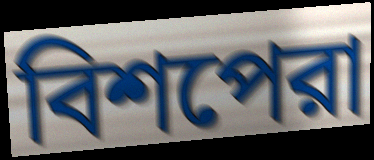
বিশপেরা